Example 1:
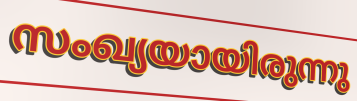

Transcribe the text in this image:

സംഖ്യയായിരുന്നു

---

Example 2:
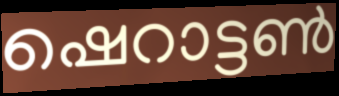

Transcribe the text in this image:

ഷെറാട്ടൺ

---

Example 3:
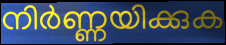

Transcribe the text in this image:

നിർണ്ണയിക്കുക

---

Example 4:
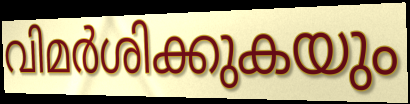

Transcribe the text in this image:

വിമർശിക്കുകയും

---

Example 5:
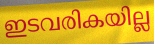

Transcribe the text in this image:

ഇടവരികയില്ല